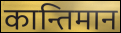
कान्तिमान